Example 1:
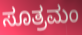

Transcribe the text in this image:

ಸೂತ್ರಮಂ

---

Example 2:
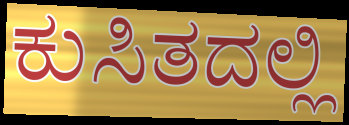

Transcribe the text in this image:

ಕುಸಿತದಲ್ಲಿ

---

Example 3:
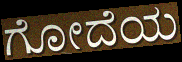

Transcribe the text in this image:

ಗೋದೆಯ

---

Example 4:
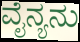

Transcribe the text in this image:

ವೈನ್ಯನು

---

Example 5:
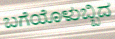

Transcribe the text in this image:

ಬಗೆಯೊಳುಬ್ಬಿದ